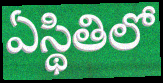
ఏస్థితిలో